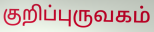
குறிப்புருவகம்